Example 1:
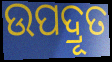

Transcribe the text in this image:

ଉପଦ୍ରୂତ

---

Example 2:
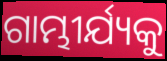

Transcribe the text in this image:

ଗାମ୍ଭୀର୍ଯ୍ୟକୁ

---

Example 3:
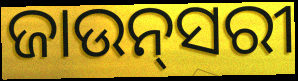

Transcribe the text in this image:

ଜାଉନ୍‌ସରୀ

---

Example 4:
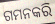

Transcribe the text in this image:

ଗମନକରି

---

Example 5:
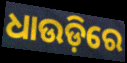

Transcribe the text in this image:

ଧାଉଡ଼ିରେ